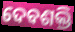
ଦେବଶକ୍ତି